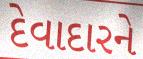
દેવાદારને